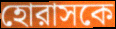
হোরাসকে